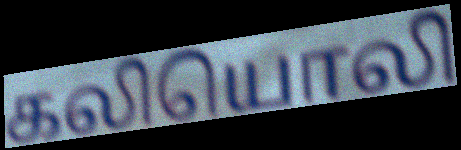
கலியொலி